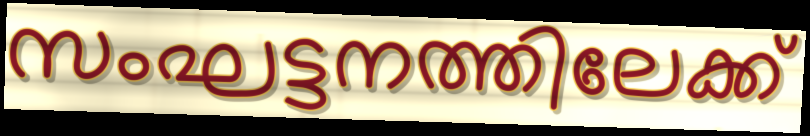
സംഘട്ടനത്തിലേക്ക്